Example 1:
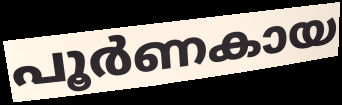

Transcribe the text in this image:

പൂർണകായ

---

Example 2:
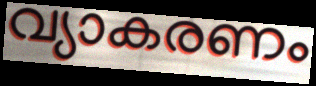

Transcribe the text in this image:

വ്യാകരണം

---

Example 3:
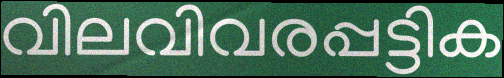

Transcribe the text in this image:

വിലവിവരപ്പട്ടിക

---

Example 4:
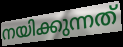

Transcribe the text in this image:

നയിക്കുന്നത്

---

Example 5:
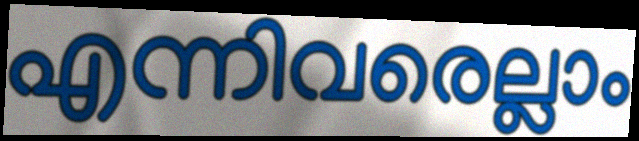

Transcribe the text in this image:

എന്നിവരെല്ലാം